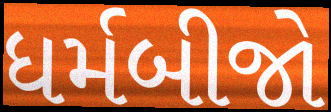
ધર્મબીજો